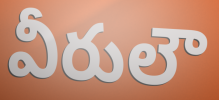
వీరులౌ